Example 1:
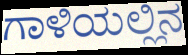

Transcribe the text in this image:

ಗಾಳಿಯಲ್ಲಿನ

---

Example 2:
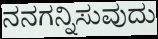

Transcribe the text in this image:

ನನಗನ್ನಿಸುವುದು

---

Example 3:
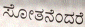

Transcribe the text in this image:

ಸೋತನೆಂದರೆ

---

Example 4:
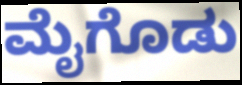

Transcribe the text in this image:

ಮೈಗೊಡು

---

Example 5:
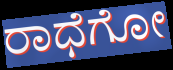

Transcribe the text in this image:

ರಾಧೆಗೋ